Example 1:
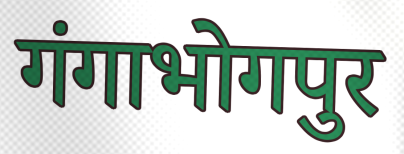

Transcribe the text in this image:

गंगाभोगपुर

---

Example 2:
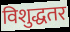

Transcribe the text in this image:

विशुद्धतर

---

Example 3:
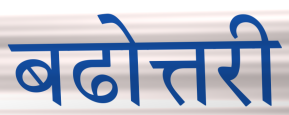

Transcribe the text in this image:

बढोत्तरी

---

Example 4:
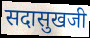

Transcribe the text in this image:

सदासुखजी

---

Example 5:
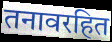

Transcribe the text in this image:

तनावरहित